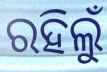
ରହିଲୁଁ